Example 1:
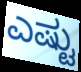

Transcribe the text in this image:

ಎಷ್ಟು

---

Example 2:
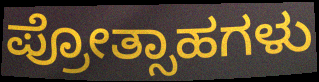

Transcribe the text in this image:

ಪ್ರೋತ್ಸಾಹಗಳು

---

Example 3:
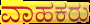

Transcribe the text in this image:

ವಾಹಕರು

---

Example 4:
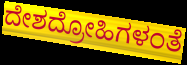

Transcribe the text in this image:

ದೇಶದ್ರೋಹಿಗಳಂತೆ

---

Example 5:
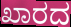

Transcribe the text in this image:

ಖಾರದ